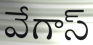
వేగాస్